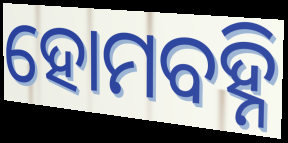
ହୋମବହ୍ନି